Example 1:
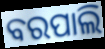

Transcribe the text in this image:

ବରପାଲି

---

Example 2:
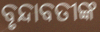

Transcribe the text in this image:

ବୃନ୍ଦାବତୀଙ୍କ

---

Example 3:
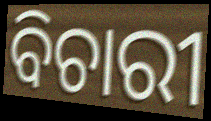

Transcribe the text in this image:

ବିଚାରୀ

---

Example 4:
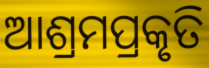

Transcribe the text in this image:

ଆଶ୍ରମପ୍ରକୃତି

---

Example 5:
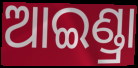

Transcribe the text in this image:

ଆଇଣ୍ଡ୍ରା